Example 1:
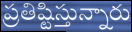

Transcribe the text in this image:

ప్రతిష్టిస్తున్నారు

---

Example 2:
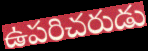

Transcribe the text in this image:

ఉపరిచరుడు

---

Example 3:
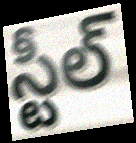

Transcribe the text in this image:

స్టీల్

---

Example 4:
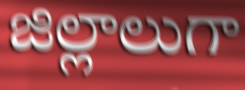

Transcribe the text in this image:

జిల్లాలుగా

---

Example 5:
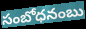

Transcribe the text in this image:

సంబోధనంబు